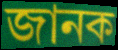
জানক